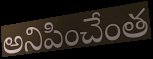
అనిపించేంత